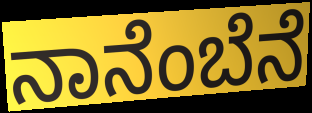
ನಾನೆಂಬೆನೆ